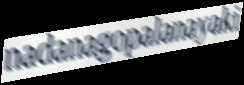
nadanagopalanayaki